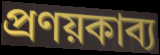
প্রণয়কাব্য